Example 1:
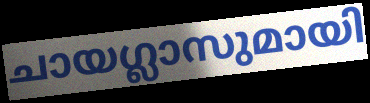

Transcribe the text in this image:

ചായഗ്ലാസുമായി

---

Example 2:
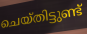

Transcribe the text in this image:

ചെയ്തിട്ടുണ്ട്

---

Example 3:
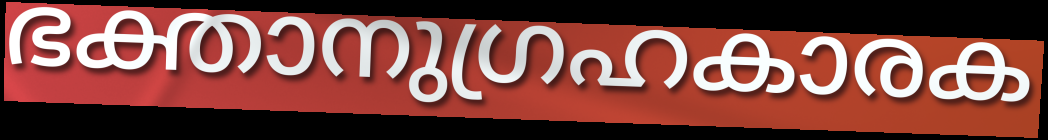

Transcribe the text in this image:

ഭക്താനുഗ്രഹകാരക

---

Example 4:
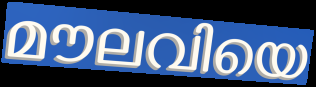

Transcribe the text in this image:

മൗലവിയെ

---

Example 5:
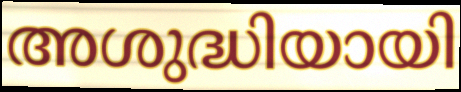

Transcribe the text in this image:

അശുദ്ധിയായി